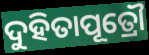
ଦୁହିତାପୂତ୍ରୌ